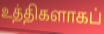
உத்திகளாகப்